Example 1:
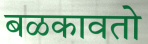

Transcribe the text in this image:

बळकावतो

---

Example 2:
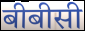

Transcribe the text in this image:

बीबीसी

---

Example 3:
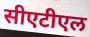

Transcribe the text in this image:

सीएटीएल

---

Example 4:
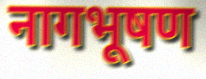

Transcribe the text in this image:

नागभूषण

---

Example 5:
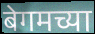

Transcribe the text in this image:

बेगमच्या